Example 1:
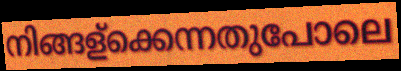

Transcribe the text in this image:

നിങ്ങള്ക്കെന്നതുപോലെ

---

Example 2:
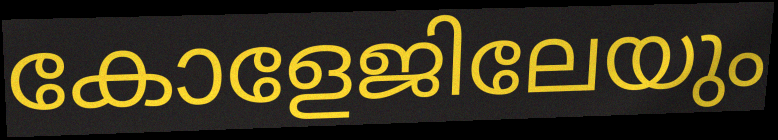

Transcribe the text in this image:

കോളേജിലേയും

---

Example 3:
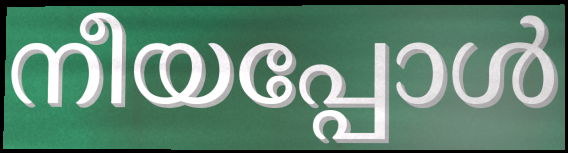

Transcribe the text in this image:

നീയപ്പോൾ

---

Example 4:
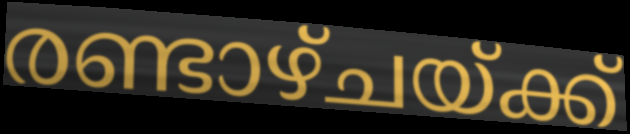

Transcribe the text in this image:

രണ്ടാഴ്ചയ്ക്ക്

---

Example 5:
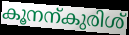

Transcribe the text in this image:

കൂനന്കുരിശ്